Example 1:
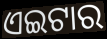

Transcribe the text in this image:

ଏଇଟାର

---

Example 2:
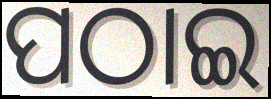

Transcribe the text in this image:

ପଠାଇ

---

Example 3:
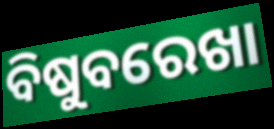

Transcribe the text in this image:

ବିଷୁବରେଖା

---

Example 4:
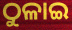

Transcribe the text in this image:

ଠୁଳାଇ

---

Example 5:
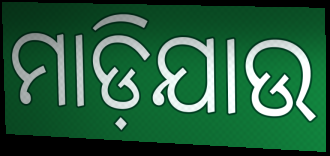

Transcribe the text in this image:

ମାଡ଼ିଯାଉ